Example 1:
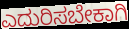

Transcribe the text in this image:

ಎದುರಿಸಬೇಕಾಗಿ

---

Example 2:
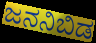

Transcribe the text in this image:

ಜನನಿಬಿಡ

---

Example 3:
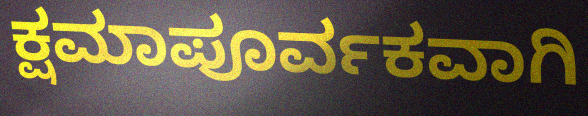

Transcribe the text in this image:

ಕ್ಷಮಾಪೂರ್ವಕವಾಗಿ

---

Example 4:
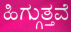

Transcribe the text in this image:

ಹಿಗ್ಗುತ್ತವೆ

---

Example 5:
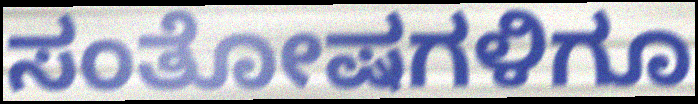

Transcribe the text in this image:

ಸಂತೋಷಗಳಿಗೂ